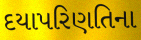
દયાપરિણતિના